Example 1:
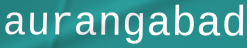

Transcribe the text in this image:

aurangabad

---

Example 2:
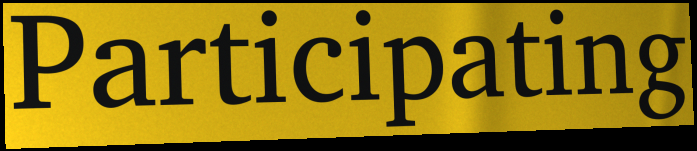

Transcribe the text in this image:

Participating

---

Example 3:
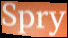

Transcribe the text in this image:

Spry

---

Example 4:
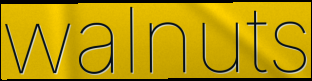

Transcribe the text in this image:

walnuts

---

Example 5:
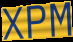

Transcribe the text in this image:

XPM